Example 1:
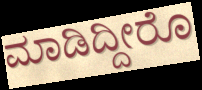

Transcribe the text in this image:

ಮಾಡಿದ್ದೀರೊ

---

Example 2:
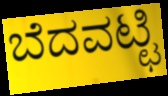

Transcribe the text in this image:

ಬೆದವಟ್ಟಿ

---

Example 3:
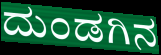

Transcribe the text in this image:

ದುಂಡಗಿನ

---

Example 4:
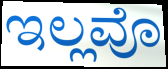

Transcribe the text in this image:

ಇಲ್ಲವೊ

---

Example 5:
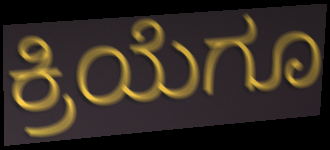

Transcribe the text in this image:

ಕ್ರಿಯೆಗೂ